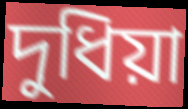
দুধিয়া